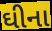
ઘીના